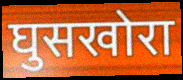
घुसखोरा